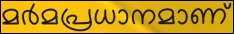
മർമപ്രധാനമാണ്